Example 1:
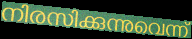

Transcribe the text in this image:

നിരസിക്കുന്നുവെന്ന്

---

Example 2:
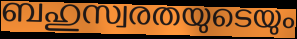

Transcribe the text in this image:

ബഹുസ്വരതയുടെയും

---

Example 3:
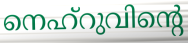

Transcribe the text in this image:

നെഹ്റുവിന്റെ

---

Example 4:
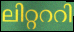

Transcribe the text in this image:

ലിറ്റററി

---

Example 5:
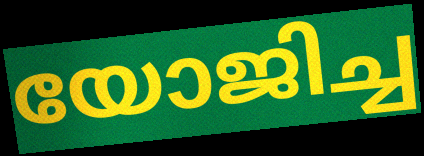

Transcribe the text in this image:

യോജിച്ച